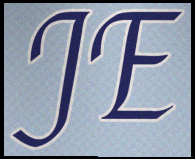
JE